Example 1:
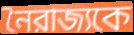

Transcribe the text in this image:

নৈরাজ্যকে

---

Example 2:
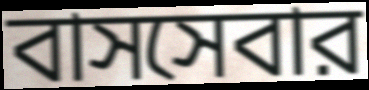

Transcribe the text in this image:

বাসসেবার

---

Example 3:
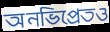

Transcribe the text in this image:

অনভিপ্রেতও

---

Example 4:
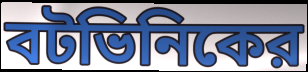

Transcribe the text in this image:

বটভিনিকের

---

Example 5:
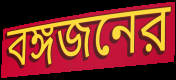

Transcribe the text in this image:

বঙ্গজনের